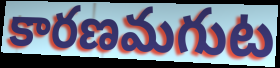
కారణమగుట